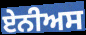
ਏਨੀਅਸ